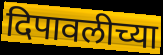
दिपावलीच्या